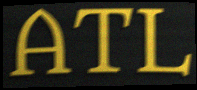
ATL